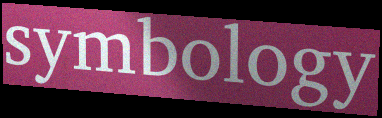
symbology